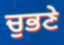
ਚੁਭਣੇ